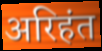
अरिहंत